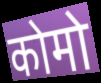
कोमो